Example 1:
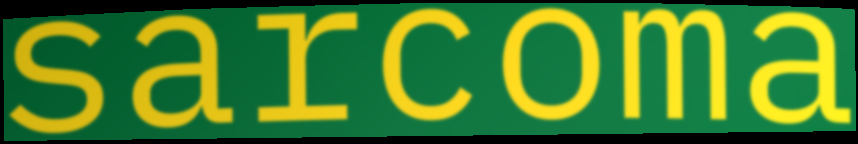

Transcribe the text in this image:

sarcoma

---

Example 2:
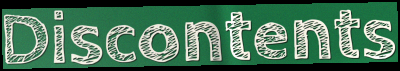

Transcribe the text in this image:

Discontents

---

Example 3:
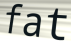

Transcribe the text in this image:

fat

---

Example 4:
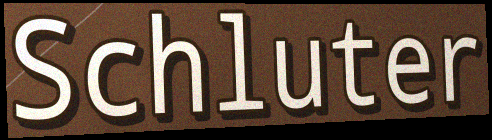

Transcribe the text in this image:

Schluter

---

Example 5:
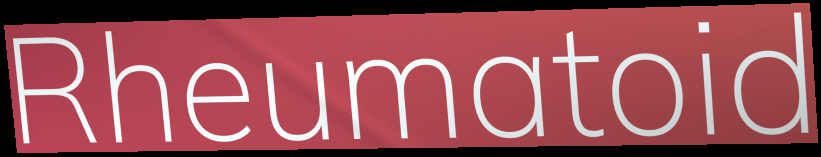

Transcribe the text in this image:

Rheumatoid